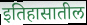
इतिहासातील